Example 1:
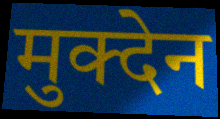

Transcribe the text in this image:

मुक्देन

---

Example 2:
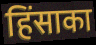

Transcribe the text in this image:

हिंसाका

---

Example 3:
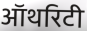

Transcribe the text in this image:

ऑथरिटी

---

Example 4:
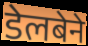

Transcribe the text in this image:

डेलबेने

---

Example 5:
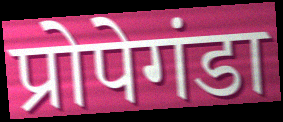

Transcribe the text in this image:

प्रोपेगंडा